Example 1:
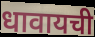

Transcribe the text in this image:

धावायची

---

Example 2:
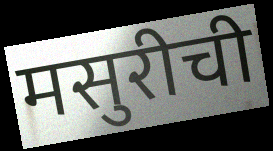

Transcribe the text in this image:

मसुरीची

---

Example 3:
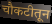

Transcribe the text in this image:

चौकटीतून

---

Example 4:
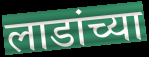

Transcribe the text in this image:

लाडांच्या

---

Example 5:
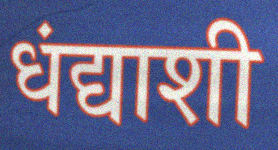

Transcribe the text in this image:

धंद्याशी